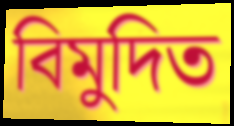
বিমুদিত